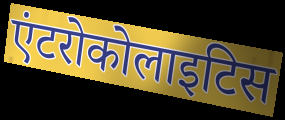
एंटरोकोलाइटिस